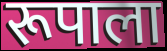
रूपाला